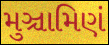
મુઞ્ચામિણં